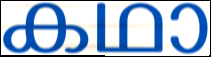
കഥാ